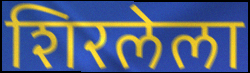
शिरलेला